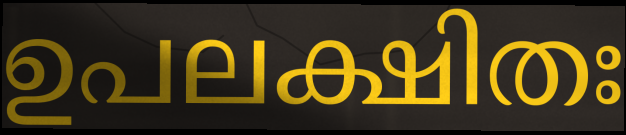
ഉപലക്ഷിതഃ